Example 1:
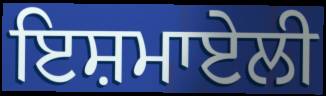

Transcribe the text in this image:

ਇਸ਼ਮਾਏਲੀ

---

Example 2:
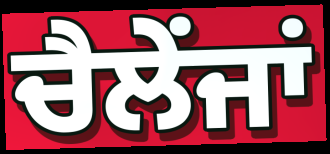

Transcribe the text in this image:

ਚੈਲੇਂਜਾਂ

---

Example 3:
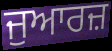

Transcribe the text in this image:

ਜੁਆਰਜ਼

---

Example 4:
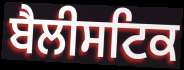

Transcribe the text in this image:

ਬੈਲੀਸਟਿਕ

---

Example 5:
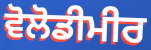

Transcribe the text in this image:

ਵੋਲੋਡੀਮੀਰ